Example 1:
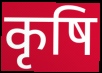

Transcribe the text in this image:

कृषि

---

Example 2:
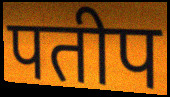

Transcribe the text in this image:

पतीप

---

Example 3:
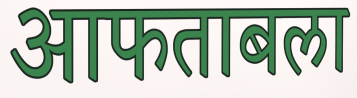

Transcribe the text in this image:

आफताबला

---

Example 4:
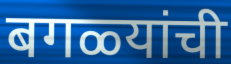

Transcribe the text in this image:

बगळ्यांची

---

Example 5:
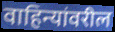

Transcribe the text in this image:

वाहिन्यांवरील